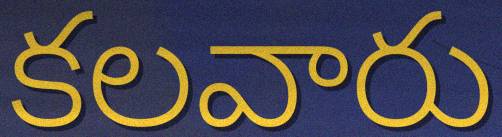
కలవారు